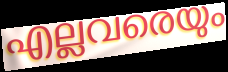
എല്ലവരെയും